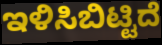
ಇಳಿಸಿಬಿಟ್ಟಿದೆ